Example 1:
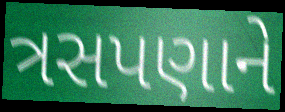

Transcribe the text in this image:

ત્રસપણાને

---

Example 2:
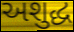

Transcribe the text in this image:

અશુદ્ધ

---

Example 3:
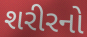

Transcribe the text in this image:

શરીરનો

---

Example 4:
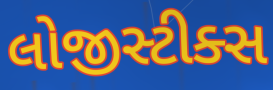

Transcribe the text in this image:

લોજીસ્ટીક્સ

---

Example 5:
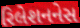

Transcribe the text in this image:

રિલેશનનેસ